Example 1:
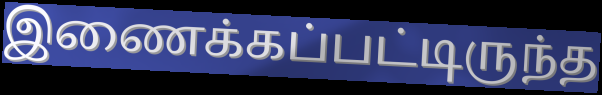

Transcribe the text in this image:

இணைக்கப்பட்டிருந்த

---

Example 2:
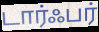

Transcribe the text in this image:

டார்ஃபர்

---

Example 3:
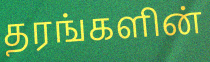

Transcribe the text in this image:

தரங்களின்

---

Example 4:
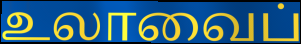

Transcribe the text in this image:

உலாவைப்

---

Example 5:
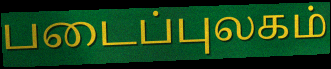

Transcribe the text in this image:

படைப்புலகம்